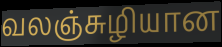
வலஞ்சுழியான